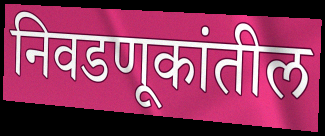
निवडणूकांतील